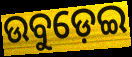
ଉବୁଡ଼େଇ